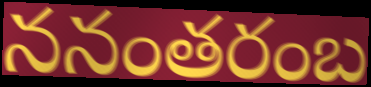
ననంతరంబ